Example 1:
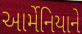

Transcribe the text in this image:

આર્મેનિયાને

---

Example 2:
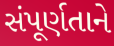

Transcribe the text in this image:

સંપૂર્ણતાને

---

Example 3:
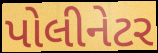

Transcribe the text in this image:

પોલીનેટર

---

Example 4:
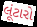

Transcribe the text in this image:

લૂંટારો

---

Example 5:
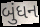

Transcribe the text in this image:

બુંધન